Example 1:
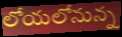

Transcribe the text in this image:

లోయలోనున్న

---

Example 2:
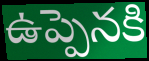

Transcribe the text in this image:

ఉప్పెనకి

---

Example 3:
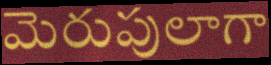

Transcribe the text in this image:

మెరుపులాగా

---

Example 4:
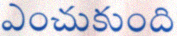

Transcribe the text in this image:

ఎంచుకుంది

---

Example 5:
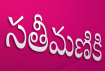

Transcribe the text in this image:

సతీమణికి